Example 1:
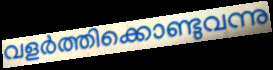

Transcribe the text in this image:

വളർത്തിക്കൊണ്ടുവന്നു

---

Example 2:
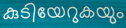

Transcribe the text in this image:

കുടിയേറുകയും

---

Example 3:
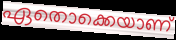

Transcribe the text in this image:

ഏതൊക്കെയാണ്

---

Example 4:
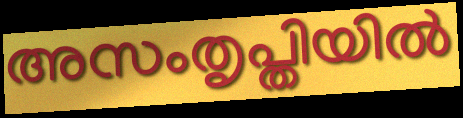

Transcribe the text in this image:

അസംതൃപ്തിയിൽ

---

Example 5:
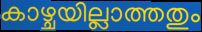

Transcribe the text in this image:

കാഴ്ചയില്ലാത്തതും